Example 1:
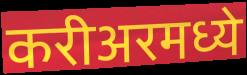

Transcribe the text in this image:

करीअरमध्ये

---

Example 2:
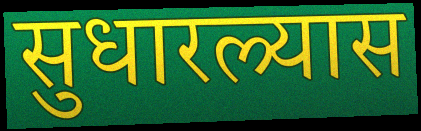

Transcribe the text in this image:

सुधारल्यास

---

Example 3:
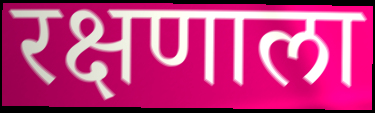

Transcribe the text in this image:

रक्षणाला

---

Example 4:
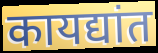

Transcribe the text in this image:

कायद्यांत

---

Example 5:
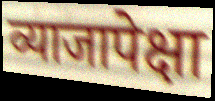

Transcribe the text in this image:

व्याजापेक्षा